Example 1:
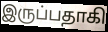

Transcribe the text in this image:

இருப்பதாகி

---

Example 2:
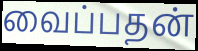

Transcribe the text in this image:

வைப்பதன்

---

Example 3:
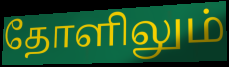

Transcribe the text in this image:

தோளிலும்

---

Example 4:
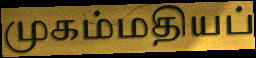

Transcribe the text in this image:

முகம்மதியப்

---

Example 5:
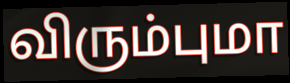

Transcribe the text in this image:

விரும்புமா